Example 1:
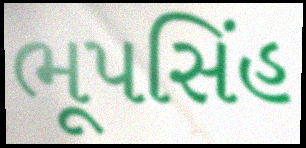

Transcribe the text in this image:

ભૂપસિંહ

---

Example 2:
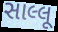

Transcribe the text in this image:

સાલ્લૂ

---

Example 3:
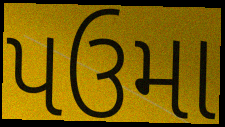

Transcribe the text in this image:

પઉમા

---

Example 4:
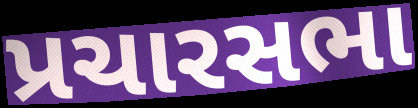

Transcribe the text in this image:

પ્રચારસભા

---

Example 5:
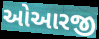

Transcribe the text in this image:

ઓઆરજી